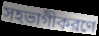
সহভাগীকরণে